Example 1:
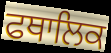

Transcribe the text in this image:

ਫਥਾਲਿਕ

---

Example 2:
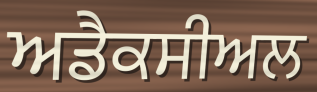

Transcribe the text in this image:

ਅਡੈਕਸੀਅਲ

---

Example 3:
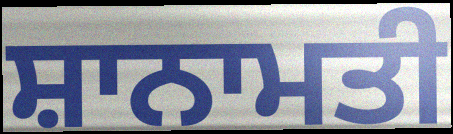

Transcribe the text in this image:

ਸ਼ਾਨਾਮਤੀ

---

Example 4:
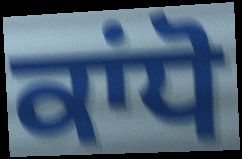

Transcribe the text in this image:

ਕਾਂਧੋ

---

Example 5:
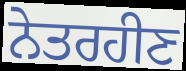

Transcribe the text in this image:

ਨੇਤਰਹੀਣ